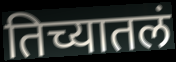
तिच्यातलं